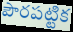
పౌరపట్టిక